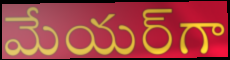
మేయర్‌గా